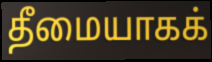
தீமையாகக்